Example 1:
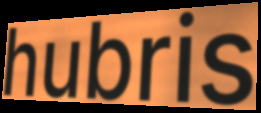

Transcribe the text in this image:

hubris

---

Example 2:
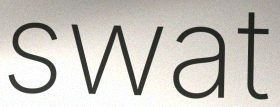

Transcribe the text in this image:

swat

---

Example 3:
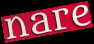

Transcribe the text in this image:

nare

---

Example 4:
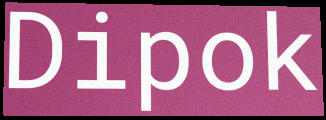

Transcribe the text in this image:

Dipok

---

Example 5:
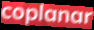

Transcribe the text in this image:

coplanar